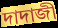
দাদাজী